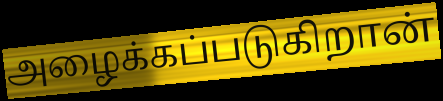
அழைக்கப்படுகிறான்